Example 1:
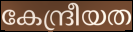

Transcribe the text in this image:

കേന്ദ്രീയത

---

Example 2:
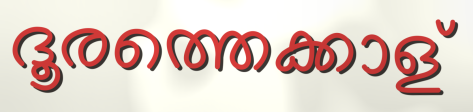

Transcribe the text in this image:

ദൂരത്തെക്കാള്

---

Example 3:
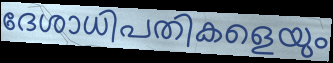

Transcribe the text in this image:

ദേശാധിപതികളെയും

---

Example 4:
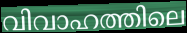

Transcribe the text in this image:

വിവാഹത്തിലെ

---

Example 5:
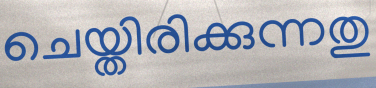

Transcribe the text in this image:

ചെയ്തിരിക്കുന്നതു